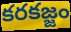
కరకజ్జం